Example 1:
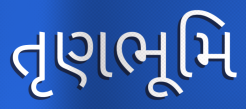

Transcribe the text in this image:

તૃણભૂમિ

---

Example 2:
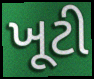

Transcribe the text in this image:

ખૂટી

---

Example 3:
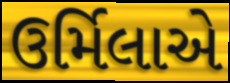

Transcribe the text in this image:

ઉર્મિલાએ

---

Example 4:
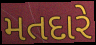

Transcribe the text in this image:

મતદારે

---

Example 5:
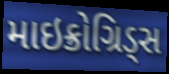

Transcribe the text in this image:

માઇક્રોગ્રિડ્સ